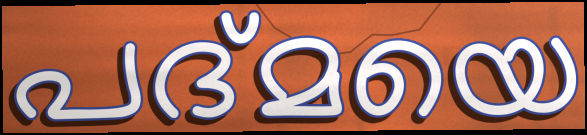
പദ്മയെ